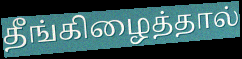
தீங்கிழைத்தால்